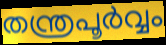
തന്ത്രപൂർവ്വം